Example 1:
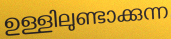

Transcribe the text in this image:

ഉള്ളിലുണ്ടാക്കുന്ന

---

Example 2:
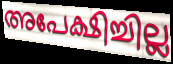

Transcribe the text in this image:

അപേക്ഷിച്ചില്ല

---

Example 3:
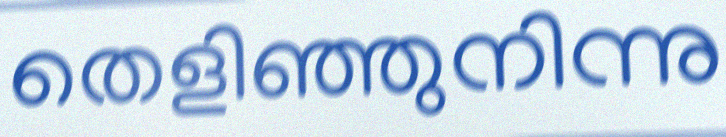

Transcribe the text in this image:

തെളിഞ്ഞുനിന്നു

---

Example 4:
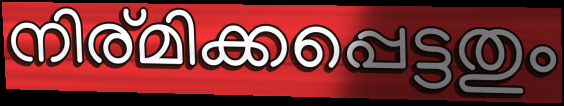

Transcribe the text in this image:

നിര്മിക്കപ്പെട്ടതും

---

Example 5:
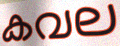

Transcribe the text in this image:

കവല